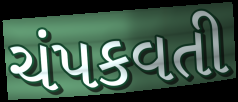
ચંપકવતી